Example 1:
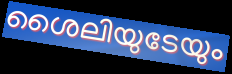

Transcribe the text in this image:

ശൈലിയുടേയും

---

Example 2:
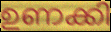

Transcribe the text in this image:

ഉണക്കി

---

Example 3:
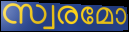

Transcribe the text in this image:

സ്വരമോ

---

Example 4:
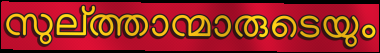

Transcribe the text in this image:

സുല്ത്താന്മാരുടെയും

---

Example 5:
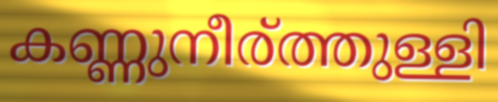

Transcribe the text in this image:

കണ്ണുനീര്ത്തുള്ളി